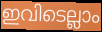
ഇവിടെല്ലാം